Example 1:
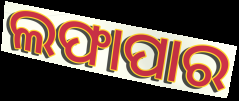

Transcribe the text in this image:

ଲଫାପାର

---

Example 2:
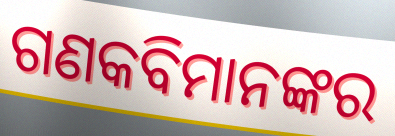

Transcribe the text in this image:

ଗଣକବିମାନଙ୍କର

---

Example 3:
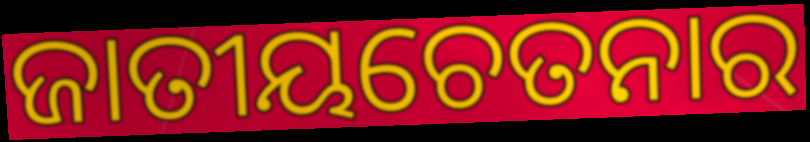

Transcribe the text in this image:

ଜାତୀୟଚେତନାର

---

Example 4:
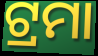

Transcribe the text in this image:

ଟ୍ରମା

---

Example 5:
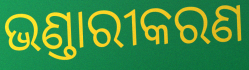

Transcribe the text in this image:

ଭଣ୍ଡାରୀକରଣ